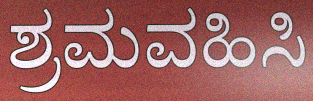
ಶ್ರಮವಹಿಸಿ